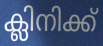
ക്ലിനിക്ക്